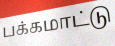
பக்கமாட்டு